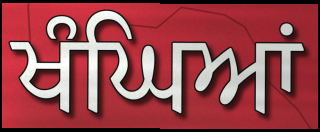
ਖੰਘਿਆਂ